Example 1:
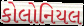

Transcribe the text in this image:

કોલોનિયલ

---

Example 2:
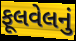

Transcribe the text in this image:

ફૂલવેલનું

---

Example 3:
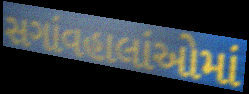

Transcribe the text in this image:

સગાંવહાલાંઓમાં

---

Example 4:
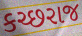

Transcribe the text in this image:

કચ્છરાજ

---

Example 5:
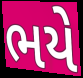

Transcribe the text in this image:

ભયે